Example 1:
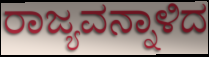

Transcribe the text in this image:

ರಾಜ್ಯವನ್ನಾಳಿದ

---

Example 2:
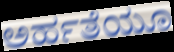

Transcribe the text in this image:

ಅರ್ಹತೆಯೂ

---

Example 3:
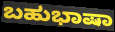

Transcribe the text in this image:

ಬಹುಭಾಷಾ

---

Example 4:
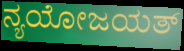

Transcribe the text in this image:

ನ್ಯಯೋಜಯತ್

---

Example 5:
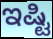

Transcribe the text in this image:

ಇಷ್ಟಿ